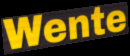
Wente